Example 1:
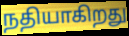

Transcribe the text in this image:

நதியாகிறது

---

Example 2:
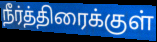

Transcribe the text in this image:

நீர்த்திரைக்குள்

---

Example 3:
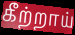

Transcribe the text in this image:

கீற்றாய்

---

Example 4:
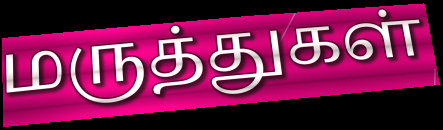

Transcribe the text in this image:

மருத்துகள்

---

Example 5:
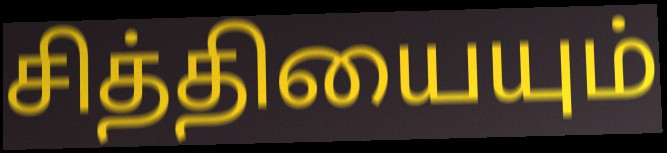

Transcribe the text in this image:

சித்தியையும்